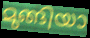
മുങ്ങിയാ